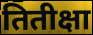
तितीक्षा